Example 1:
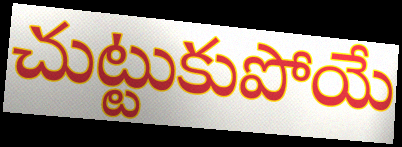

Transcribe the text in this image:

చుట్టుకుపోయే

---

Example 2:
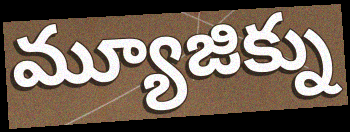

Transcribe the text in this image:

మ్యూజిక్ను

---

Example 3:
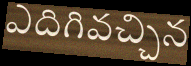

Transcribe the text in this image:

ఎదిగివచ్చిన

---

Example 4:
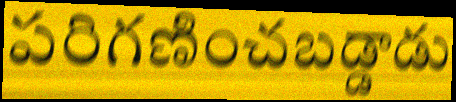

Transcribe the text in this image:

పరిగణించబడ్డాడు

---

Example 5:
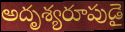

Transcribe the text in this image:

అదృశ్యరూపుడై